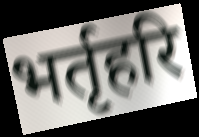
भर्तृहरि